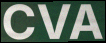
CVA